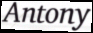
Antony